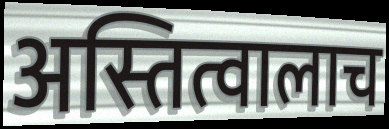
अस्तित्वालाच